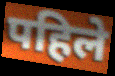
पहिले